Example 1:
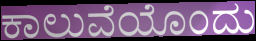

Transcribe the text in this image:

ಕಾಲುವೆಯೊಂದು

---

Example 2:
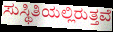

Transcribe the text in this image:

ಸುಸ್ಥಿತಿಯಲ್ಲಿರುತ್ತವೆ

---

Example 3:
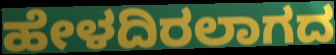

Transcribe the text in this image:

ಹೇಳದಿರಲಾಗದ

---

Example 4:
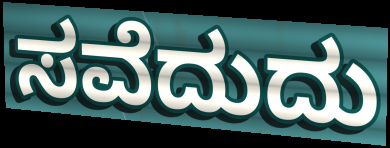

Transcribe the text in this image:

ಸವೆದುದು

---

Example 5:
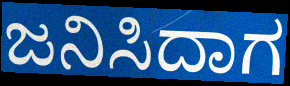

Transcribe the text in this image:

ಜನಿಸಿದಾಗ